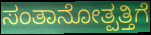
ಸಂತಾನೋತ್ಪತ್ತಿಗೆ